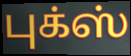
புக்ஸ்